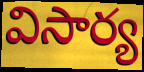
విసార్య